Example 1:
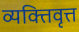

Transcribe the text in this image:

व्यक्तिवृत्त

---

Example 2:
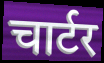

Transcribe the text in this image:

चार्टर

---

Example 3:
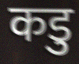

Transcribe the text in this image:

कडु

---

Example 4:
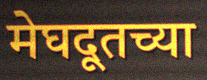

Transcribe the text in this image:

मेघदूतच्या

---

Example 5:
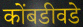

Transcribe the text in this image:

कोंबडीवडे